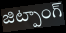
జిట్పాంగ్